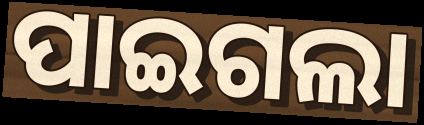
ପାଇଗଲା